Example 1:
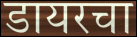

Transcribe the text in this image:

डायरचा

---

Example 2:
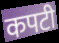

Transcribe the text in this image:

कपटी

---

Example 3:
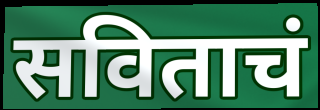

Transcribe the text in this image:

सविताचं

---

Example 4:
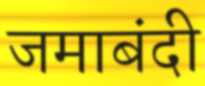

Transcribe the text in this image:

जमाबंदी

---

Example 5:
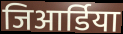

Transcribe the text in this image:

जिआर्डिया